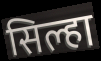
सिल्हा